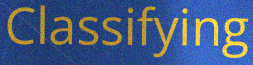
Classifying